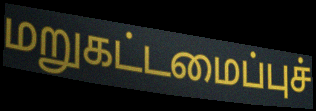
மறுகட்டமைப்புச்